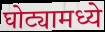
घोट्यामध्ये